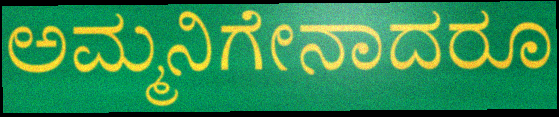
ಅಮ್ಮನಿಗೇನಾದರೂ